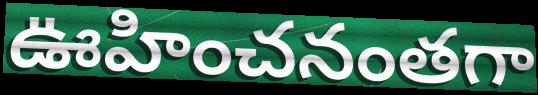
ఊహించనంతగా